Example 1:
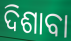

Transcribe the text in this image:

ଦିଶାବା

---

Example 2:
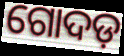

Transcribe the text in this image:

ଗୋଦଡ଼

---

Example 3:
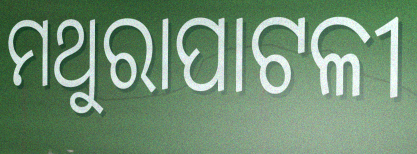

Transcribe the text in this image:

ମଥୁରାପାଟଳୀ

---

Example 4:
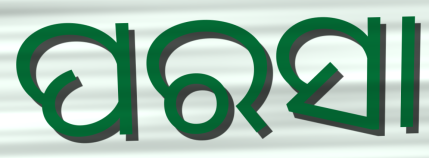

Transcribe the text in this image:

ପରସା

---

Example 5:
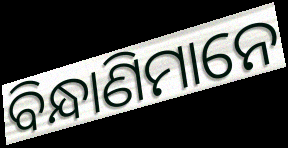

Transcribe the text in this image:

ବିନ୍ଧାଣିମାନେ